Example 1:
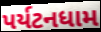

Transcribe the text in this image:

પર્યટનધામ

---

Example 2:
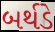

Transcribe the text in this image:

બર્થડે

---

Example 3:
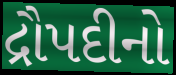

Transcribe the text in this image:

દ્રૌપદીનો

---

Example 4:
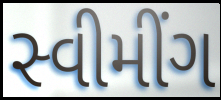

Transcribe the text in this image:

સ્વીમીંગ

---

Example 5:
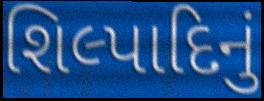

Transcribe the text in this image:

શિલ્પાદિનું